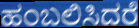
ಹಂಬಲಿಸಿದರೆ